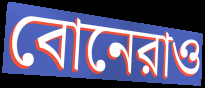
বোনেরাও